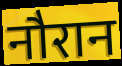
नौरान